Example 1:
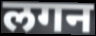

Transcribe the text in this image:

लगन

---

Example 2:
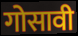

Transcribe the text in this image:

गोसावी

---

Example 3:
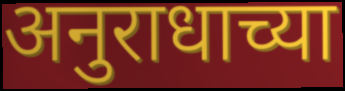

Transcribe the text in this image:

अनुराधाच्या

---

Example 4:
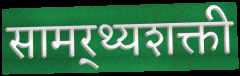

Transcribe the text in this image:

सामर्थ्यशक्ती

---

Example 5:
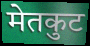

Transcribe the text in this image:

मेतकुट